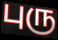
புரு